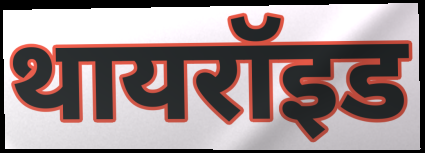
थायरॉइड